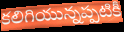
కలిగియున్నప్పటికీ